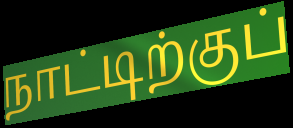
நாட்டிற்குப்